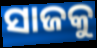
ସାଜକୁ